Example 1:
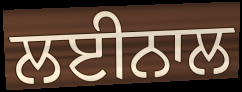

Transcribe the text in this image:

ਲਈਨਾਲ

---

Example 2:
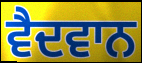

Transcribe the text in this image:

ਵੈਦਵਾਨ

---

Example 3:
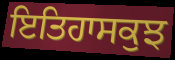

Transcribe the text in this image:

ਇਤਿਹਾਸਕੁਝ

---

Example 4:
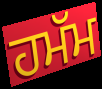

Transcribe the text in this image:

ਹਮੱਮ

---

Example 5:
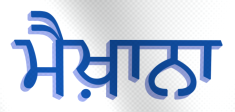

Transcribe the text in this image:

ਮੈਖ਼ਾਨਾ